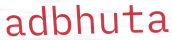
adbhuta